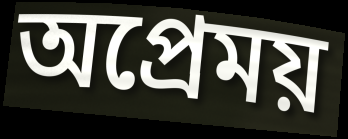
অপ্রেময়